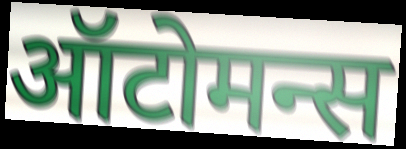
ऑटोमन्स